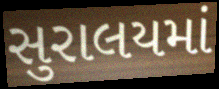
સુરાલયમાં